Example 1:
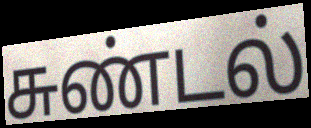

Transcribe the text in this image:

சுண்டல்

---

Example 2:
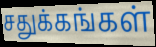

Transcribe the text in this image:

சதுக்கங்கள்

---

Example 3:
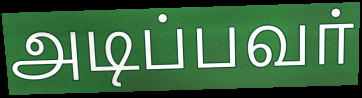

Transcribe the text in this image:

அடிப்பவர்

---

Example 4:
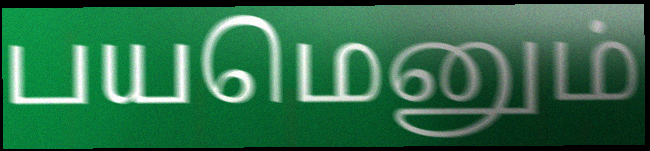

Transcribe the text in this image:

பயமெனும்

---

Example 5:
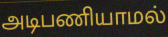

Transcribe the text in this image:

அடிபணியாமல்